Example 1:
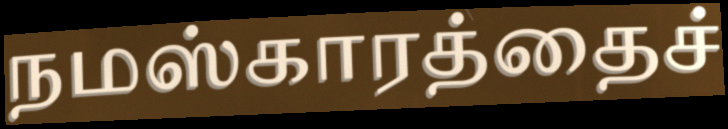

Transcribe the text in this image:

நமஸ்காரத்தைச்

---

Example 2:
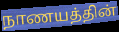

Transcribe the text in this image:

நாணயத்தின்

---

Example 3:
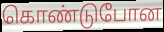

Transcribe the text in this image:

கொண்டுபோன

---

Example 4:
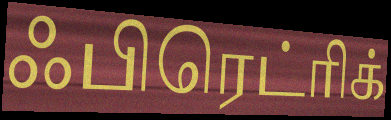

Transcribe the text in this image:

ஃபிரெட்ரிக்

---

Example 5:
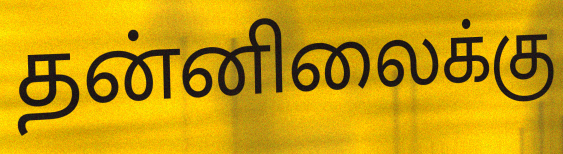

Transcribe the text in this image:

தன்னிலைக்கு